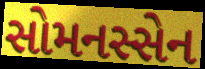
સોમનસ્સેન